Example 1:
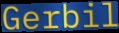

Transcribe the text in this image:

Gerbil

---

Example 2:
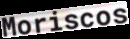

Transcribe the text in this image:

Moriscos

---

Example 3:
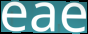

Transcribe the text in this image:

eae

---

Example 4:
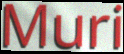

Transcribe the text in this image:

Muri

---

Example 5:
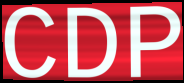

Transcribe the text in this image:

CDP